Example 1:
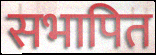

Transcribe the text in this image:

सभापित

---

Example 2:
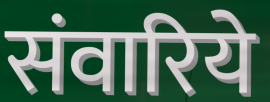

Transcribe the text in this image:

संवारिये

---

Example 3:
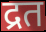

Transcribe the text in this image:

द्रत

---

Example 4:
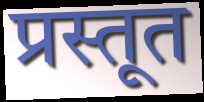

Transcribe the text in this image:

प्रस्तूत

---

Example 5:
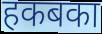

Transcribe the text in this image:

हकबका